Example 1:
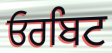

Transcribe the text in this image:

ਓਰਬਿਟ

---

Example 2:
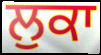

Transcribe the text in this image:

ਲੁਕਾ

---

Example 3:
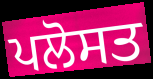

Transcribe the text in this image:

ਪਲੋਸਤ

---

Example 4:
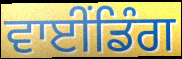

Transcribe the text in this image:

ਵਾਈਂਡਿੰਗ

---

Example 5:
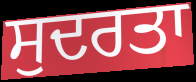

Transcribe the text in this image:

ਸੁਦਰਤਾ